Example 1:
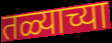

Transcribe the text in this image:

तळ्याच्या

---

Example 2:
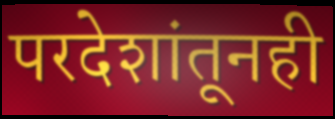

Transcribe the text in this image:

परदेशांतूनही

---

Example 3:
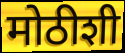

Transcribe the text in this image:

मोठीशी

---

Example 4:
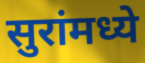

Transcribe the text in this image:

सुरांमध्ये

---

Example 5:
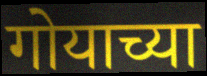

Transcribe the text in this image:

गोयाच्या